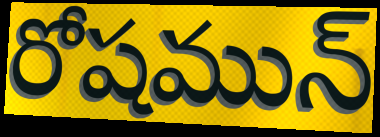
రోషమున్